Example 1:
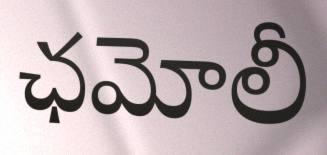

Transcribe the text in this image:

ఛమోలీ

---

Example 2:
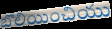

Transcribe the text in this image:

బొలియించియు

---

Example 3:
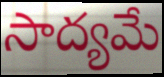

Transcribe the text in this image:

సాద్యమే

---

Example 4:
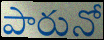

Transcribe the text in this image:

పారునో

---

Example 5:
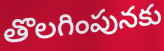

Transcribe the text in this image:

తొలగింపునకు